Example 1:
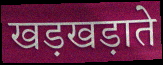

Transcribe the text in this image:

खड़खड़ाते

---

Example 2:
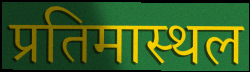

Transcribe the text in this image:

प्रतिमास्थल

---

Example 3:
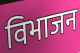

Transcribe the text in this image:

विभाजन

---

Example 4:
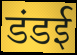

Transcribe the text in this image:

डंडई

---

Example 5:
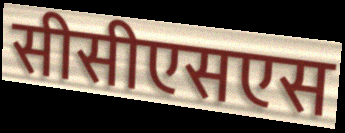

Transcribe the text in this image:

सीसीएसएस